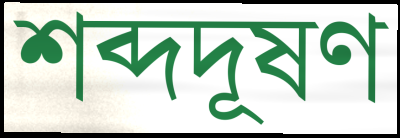
শব্দদূষণ